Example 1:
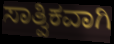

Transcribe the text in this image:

ಸಾತ್ವಿಕವಾಗಿ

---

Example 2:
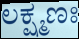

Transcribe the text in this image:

ಲಕ್ಷ್ಮಣಃ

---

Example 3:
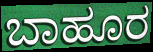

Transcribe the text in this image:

ಬಾಹೂರ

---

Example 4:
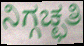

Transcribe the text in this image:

ನಿಗ್ಗಚ್ಛತಿ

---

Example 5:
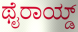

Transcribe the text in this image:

ಥೈರಾಯ್ಡ್